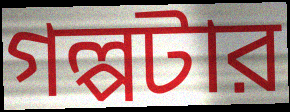
গল্পটার